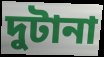
দুটানা